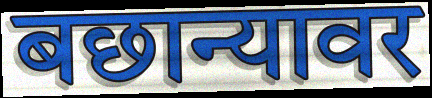
बछान्यावर